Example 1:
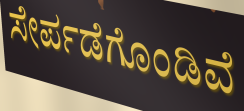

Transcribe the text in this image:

ಸೇರ್ಪಡೆಗೊಂಡಿವೆ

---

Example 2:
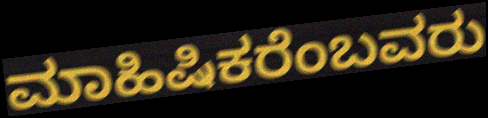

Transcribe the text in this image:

ಮಾಹಿಷಿಕರೆಂಬವರು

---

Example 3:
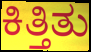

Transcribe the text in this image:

ಕಿತ್ತಿತು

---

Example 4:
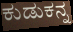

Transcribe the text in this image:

ಕುಡುಕನ್ನ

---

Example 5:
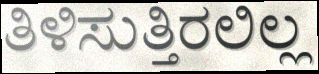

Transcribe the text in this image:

ತಿಳಿಸುತ್ತಿರಲಿಲ್ಲ